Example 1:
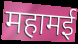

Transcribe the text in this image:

महामई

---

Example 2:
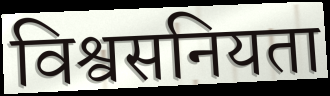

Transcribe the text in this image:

विश्वसनियता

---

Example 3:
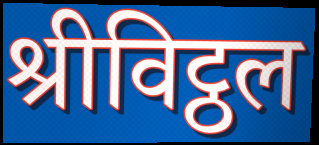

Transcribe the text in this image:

श्रीविट्ठल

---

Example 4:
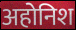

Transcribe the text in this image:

अहोनिश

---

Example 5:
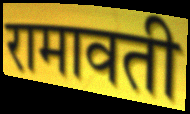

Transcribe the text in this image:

रामावती